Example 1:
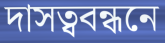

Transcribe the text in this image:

দাসত্ববন্ধনে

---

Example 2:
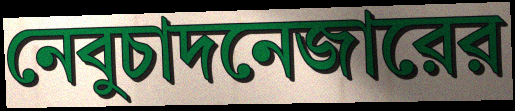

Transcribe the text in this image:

নেবুচাদনেজারের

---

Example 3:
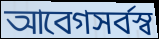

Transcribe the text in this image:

আবেগসর্বস্ব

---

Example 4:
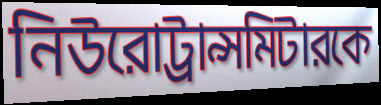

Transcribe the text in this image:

নিউরোট্রান্সমিটারকে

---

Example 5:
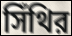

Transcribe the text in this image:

সিঁথির